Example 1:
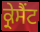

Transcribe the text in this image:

ਕ੍ਰੇਸੈਂਟ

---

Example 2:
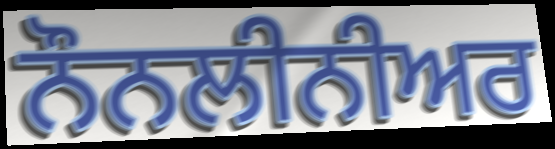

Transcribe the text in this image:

ਨੌਨਲੀਨੀਅਰ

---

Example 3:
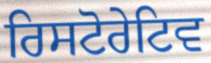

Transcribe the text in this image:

ਰਿਸਟੋਰੇਟਿਵ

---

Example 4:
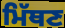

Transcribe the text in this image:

ਮਿੱਥਣ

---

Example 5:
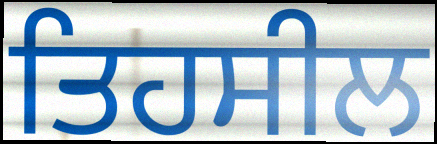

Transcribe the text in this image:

ਤਿਹਸੀਲ